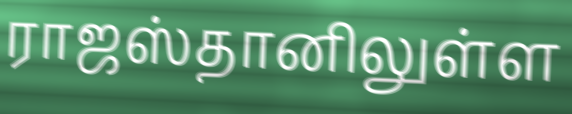
ராஜஸ்தானிலுள்ள